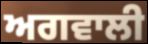
ਅਗਵਾਲੀ